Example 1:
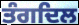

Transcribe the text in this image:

ਤੰਗਦਿਲ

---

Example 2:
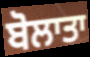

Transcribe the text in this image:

ਬੋਲਾਤਾ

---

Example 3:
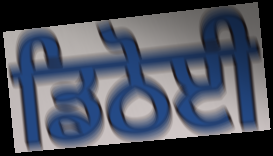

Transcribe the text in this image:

ਡਿਠੋਈ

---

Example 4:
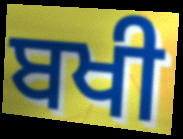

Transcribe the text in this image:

ਬਖੀ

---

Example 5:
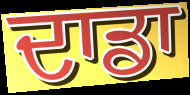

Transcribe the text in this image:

ਦਾਡਾ